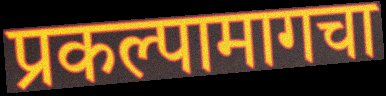
प्रकल्पामागचा